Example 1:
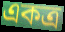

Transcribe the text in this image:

একত্ৰ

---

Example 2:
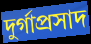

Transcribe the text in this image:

দুৰ্গাপ্ৰসাদ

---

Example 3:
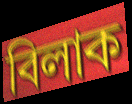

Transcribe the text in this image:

বিলাক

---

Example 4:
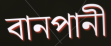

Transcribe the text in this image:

বানপানী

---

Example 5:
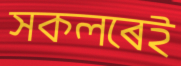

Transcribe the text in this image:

সকলৰেই